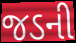
જડની